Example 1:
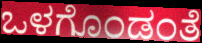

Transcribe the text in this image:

ಒಳಗೊಂಡಂತೆ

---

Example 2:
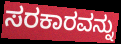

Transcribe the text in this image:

ಸರಕಾರವನ್ನು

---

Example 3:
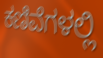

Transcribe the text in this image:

ಕಣಿವೆಗಳಲ್ಲಿ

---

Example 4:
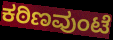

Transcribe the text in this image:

ಕಠಿಣವುಂಟೆ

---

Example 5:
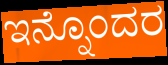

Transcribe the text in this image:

ಇನ್ನೊಂದರ